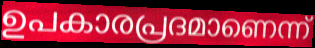
ഉപകാരപ്രദമാണെന്ന്